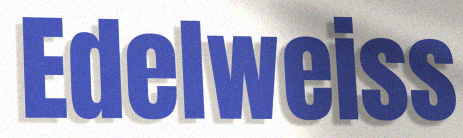
Edelweiss